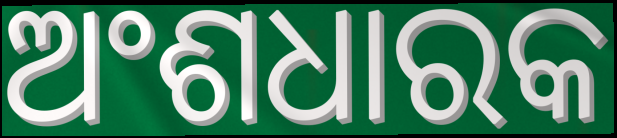
ଅଂଶଧାରକ